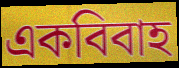
একবিবাহ